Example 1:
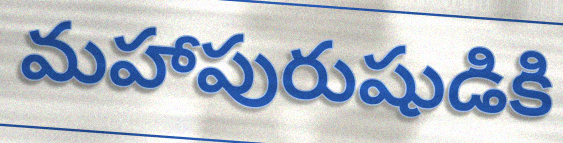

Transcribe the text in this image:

మహాపురుషుడికి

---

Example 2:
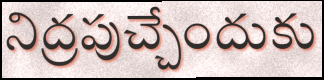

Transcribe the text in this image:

నిద్రపుచ్చేందుకు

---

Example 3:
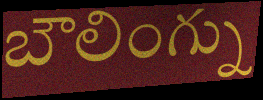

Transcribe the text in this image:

బౌలింగ్ను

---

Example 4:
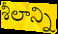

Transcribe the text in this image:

శీలాన్ని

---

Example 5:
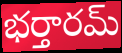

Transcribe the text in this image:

భర్తారమ్